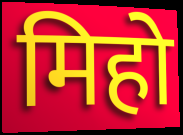
मिहो